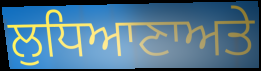
ਲੁਧਿਆਣਾਅਤੇ